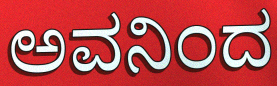
ಅವನಿಂದ